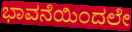
ಭಾವನೆಯಿಂದಲೇ